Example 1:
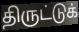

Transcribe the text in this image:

திருட்டுக்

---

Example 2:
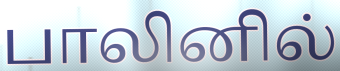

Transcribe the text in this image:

பாலினில்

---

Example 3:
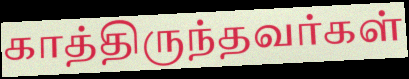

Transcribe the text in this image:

காத்திருந்தவர்கள்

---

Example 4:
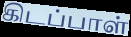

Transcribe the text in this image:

கிடப்பாள்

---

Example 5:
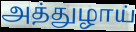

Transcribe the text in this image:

அத்துழாய்